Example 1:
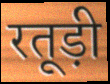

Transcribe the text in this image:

रतूड़ी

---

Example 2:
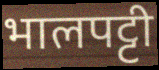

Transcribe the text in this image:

भालपट्टी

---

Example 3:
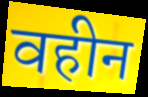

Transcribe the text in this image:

वहीन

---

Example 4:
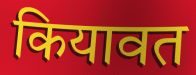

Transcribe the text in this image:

कियावत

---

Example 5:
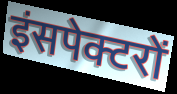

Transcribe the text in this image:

इंसपेक्टरों